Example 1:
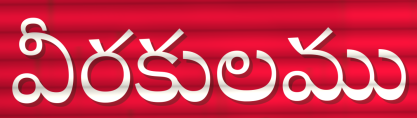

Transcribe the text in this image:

వీరకులము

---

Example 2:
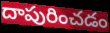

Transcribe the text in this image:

దాపురించడం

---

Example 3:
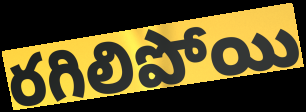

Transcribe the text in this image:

రగిలిపోయి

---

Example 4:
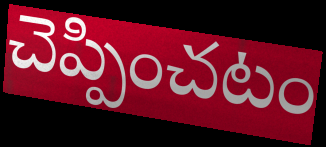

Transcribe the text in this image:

చెప్పించటం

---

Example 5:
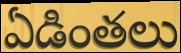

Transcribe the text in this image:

ఏడింతలు